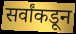
सर्वांकडून